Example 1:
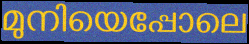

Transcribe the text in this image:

മുനിയെപ്പോലെ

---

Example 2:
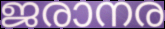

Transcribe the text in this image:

ജരാനര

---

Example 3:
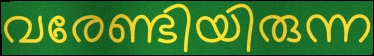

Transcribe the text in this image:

വരേണ്ടിയിരുന്ന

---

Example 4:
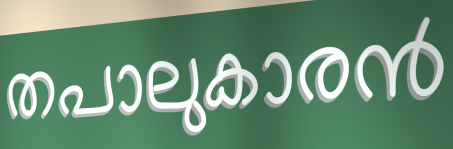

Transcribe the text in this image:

തപാലുകാരൻ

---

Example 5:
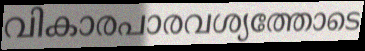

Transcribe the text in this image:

വികാരപാരവശ്യത്തോടെ